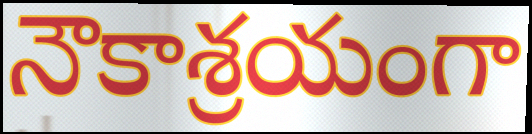
నౌకాశ్రయంగా